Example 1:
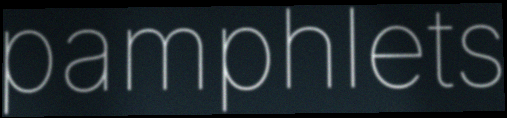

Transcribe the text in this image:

pamphlets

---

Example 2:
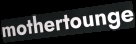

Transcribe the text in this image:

mothertounge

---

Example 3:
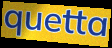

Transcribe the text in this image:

quetta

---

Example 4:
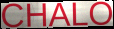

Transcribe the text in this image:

CHALO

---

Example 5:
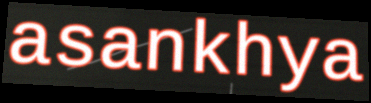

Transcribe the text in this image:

asankhya